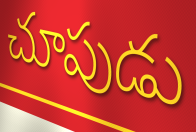
చూపుడు